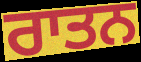
ਰਾਤਨ